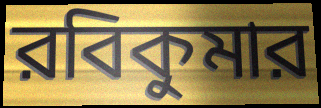
রবিকুমার